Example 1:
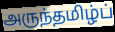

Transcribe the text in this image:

அருந்தமிழ்ப்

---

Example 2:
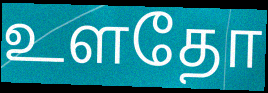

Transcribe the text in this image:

உளதோ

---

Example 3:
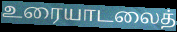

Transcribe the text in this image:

உரையாடலைத்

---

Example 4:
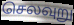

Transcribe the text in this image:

செலவுறு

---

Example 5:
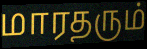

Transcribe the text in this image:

மாரதரும்